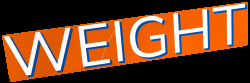
WEIGHT